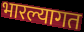
भारल्यागत